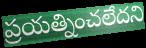
ప్రయత్నించలేదని